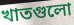
খাতগুলো